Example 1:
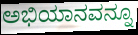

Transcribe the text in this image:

ಅಭಿಯಾನವನ್ನೂ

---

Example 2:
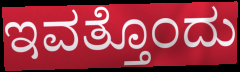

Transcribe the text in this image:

ಇವತ್ತೊಂದು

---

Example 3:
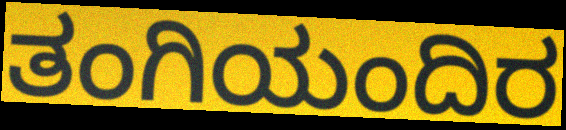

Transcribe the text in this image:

ತಂಗಿಯಂದಿರ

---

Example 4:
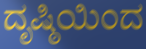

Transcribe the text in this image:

ದೃಷ್ಠಿಯಿಂದ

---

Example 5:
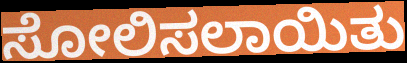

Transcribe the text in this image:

ಸೋಲಿಸಲಾಯಿತು